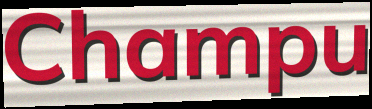
Champu